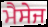
ਮੈਸੇਜ